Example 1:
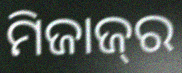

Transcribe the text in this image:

ମିଜାଜ୍‌ର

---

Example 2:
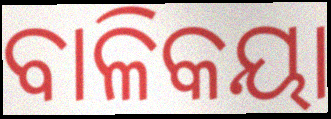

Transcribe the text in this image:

ବାଳିକୟା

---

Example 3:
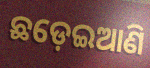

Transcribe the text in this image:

ଛଡ଼େଇଆଣି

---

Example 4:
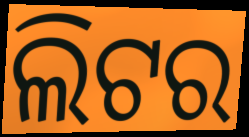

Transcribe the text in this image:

ଲିଟର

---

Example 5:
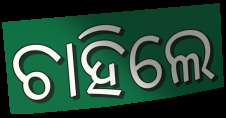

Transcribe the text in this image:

ଚାହିଲେ